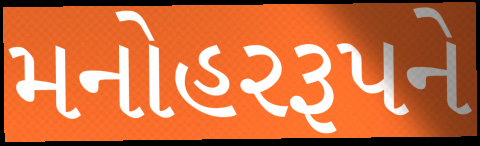
મનોહરરૂપને